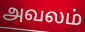
அவலம்